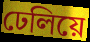
ঢেলিয়ে